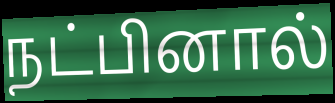
நட்பினால்